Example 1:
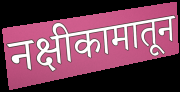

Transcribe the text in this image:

नक्षीकामातून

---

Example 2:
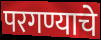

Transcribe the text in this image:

परगण्याचे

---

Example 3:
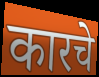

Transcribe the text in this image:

कारचे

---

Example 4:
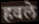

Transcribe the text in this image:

हवले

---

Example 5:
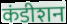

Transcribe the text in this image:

कंडीशन